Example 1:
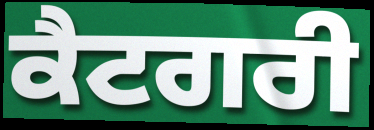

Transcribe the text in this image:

ਕੈਟਗਰੀ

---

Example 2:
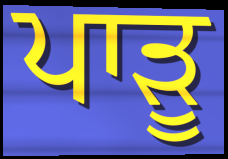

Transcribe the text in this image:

ਪਾੜੂ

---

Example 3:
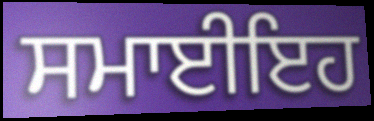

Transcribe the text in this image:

ਸਮਾਈਇਹ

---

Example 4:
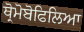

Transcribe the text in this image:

ਥ੍ਰੋਮੋਬੋਫਿਲਿਆ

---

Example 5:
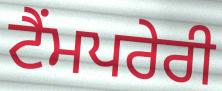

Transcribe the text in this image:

ਟੈਂਮਪਰੇਰੀ